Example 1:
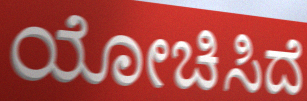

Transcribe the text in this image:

ಯೋಚಿಸಿದೆ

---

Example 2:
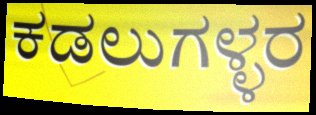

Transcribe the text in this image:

ಕಡಲುಗಳ್ಳರ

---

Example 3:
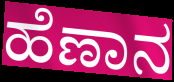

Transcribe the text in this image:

ಹೆಣಾನ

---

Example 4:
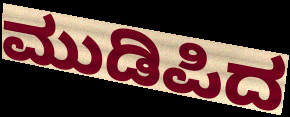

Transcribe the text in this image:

ಮುಡಿಪಿದ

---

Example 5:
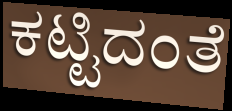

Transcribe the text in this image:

ಕಟ್ಟಿದಂತೆ